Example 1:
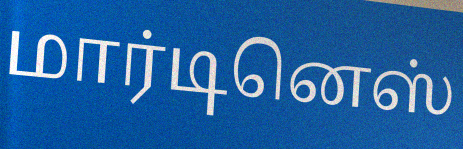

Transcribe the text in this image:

மார்டினெஸ்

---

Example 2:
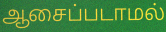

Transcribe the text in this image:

ஆசைப்படாமல்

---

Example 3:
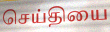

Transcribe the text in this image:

செய்தியை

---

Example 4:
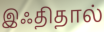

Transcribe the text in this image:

இஃதிதால்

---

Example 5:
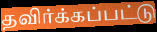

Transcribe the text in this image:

தவிர்க்கப்பட்டு